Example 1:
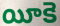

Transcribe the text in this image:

యీకె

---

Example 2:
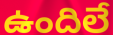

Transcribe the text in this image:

ఉందిలే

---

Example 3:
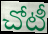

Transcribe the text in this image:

చోటీ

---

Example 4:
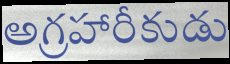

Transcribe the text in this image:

అగ్రహారీకుడు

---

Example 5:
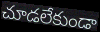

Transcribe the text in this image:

చూడలేకుండా